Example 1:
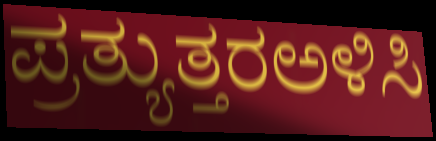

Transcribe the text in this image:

ಪ್ರತ್ಯುತ್ತರಅಳಿಸಿ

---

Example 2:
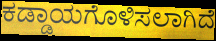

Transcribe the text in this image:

ಕಡ್ಡಾಯಗೊಳಿಸಲಾಗಿದೆ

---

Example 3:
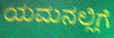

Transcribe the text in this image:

ಯಮನಲ್ಲಿಗೆ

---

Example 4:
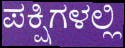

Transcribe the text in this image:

ಪಕ್ಷಿಗಳಲ್ಲಿ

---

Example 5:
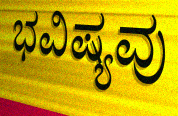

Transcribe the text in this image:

ಭವಿಷ್ಯವು